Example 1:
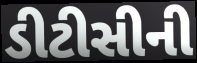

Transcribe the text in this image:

ડીટીસીની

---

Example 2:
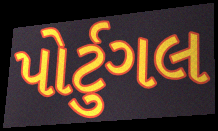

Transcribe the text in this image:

પોર્ટુગલ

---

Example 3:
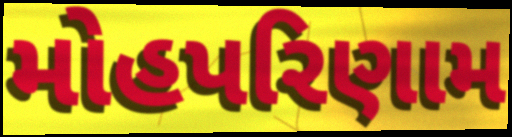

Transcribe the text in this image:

મોહપરિણામ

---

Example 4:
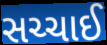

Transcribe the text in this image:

સચ્ચાઈ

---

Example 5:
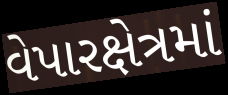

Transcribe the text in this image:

વેપારક્ષેત્રમાં